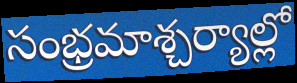
సంభ్రమాశ్చర్యాల్లో